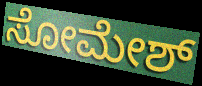
ಸೋಮೇಶ್